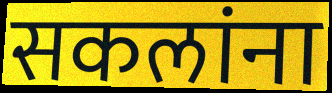
सकलांना